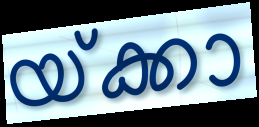
യ്‌ക്കാ